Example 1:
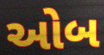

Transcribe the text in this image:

ઓબ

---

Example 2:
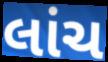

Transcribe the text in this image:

લાંચ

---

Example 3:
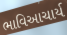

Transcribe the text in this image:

ભાવિઆચાર્ય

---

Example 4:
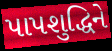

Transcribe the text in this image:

પાપશુદ્ધિને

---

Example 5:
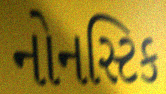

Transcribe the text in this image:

નોનસ્ટિક